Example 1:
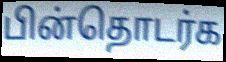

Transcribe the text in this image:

பின்தொடர்க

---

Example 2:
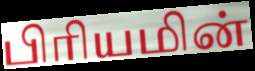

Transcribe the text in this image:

பிரியமின்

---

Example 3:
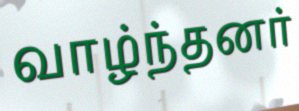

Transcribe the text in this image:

வாழ்ந்தனர்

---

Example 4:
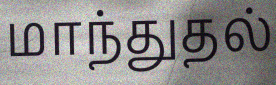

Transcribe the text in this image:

மாந்துதல்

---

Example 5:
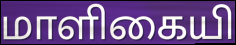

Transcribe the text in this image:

மாளிகையி